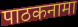
पाठकनामा